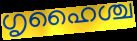
ഗൃഹൈശ്ച